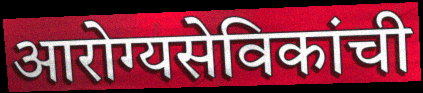
आरोग्यसेविकांची